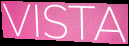
VISTA